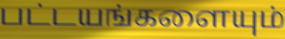
பட்டயங்களையும்